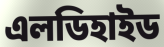
এলডিহাইড